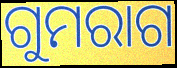
ଗୁମରାଗ